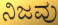
ನಿಜವು